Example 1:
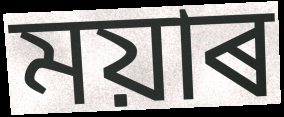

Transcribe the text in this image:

ময়াৰ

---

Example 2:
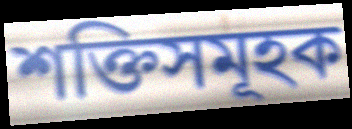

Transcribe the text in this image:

শক্তিসমূহক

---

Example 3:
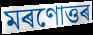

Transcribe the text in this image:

মৰণোত্তৰ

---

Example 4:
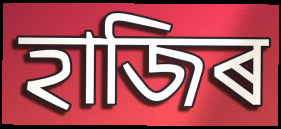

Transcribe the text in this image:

হাজিৰ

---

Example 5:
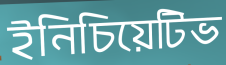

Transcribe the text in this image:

ইনিচিয়েটিভ